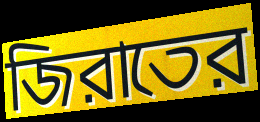
জিরাতের